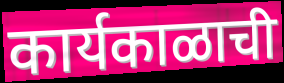
कार्यकाळाची